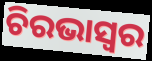
ଚିରଭାସ୍ଵର